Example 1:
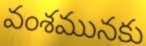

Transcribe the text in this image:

వంశమునకు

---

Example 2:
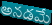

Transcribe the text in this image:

అనడమే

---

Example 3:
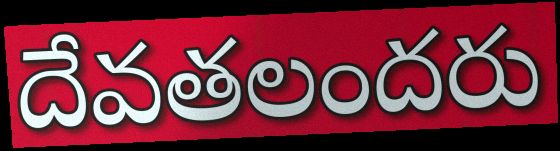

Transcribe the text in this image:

దేవతలందరు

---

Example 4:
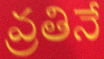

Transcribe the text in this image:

వ్రతినే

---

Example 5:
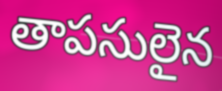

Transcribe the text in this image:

తాపసులైన